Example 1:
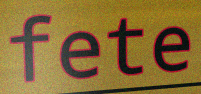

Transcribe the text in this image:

fete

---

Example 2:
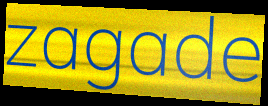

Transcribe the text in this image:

zagade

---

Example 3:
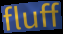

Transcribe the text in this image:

fluff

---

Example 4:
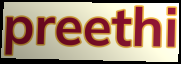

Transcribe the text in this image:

preethi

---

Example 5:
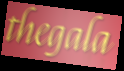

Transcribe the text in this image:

thegala